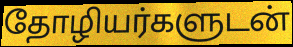
தோழியர்களுடன்